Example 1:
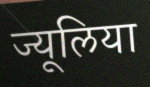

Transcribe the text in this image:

ज्यूलिया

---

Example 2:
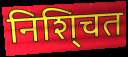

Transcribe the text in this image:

निश्‍चित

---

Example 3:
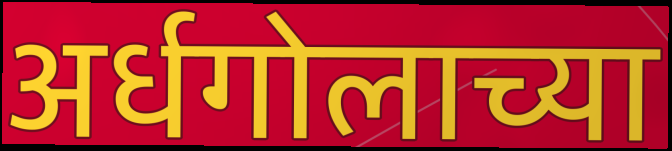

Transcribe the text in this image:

अर्धगोलाच्या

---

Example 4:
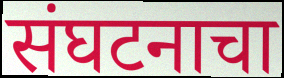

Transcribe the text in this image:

संघटनाचा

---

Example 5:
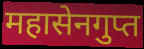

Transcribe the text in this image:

महासेनगुप्त